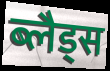
ब्लैड्स